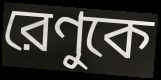
রেণুকে